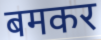
बमकर